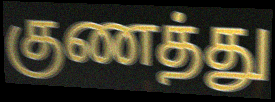
குணத்து